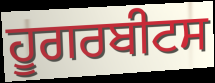
ਹੂਗਰਬੀਟਸ